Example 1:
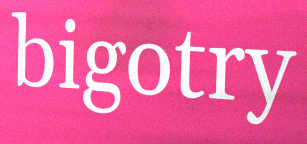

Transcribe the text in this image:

bigotry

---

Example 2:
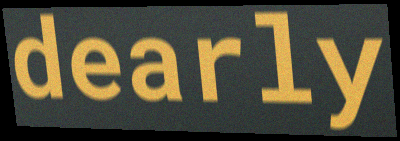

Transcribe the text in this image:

dearly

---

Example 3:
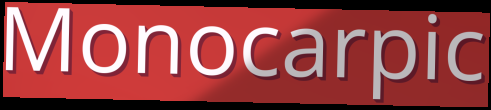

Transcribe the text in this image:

Monocarpic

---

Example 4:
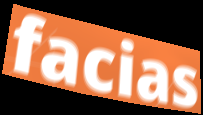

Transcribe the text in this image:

facias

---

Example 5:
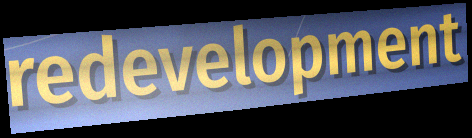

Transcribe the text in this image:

redevelopment